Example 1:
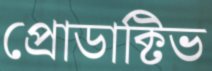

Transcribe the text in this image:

প্রোডাক্টিভ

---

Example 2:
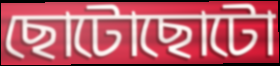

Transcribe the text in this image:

ছোটোছোটো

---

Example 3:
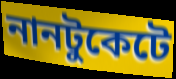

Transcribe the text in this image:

নানটুকেটে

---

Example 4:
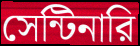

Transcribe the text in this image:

সেন্টিনারি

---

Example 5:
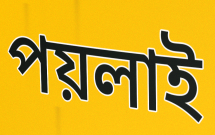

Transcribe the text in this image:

পয়লাই